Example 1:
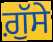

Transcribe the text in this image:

ਗ਼ੁੱਸੇ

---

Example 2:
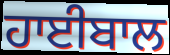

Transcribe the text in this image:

ਹਾਈਬਾਲ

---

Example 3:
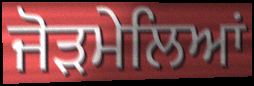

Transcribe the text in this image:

ਜੋੜਮੇਲਿਆਂ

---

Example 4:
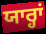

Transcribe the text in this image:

ਯਾਰ੍ਹਾਂ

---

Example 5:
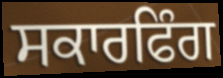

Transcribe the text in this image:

ਸਕਾਰਫਿੰਗ